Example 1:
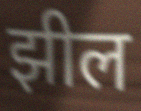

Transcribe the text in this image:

झील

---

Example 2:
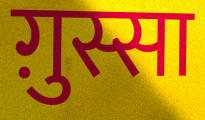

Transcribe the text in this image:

ग़ुस्सा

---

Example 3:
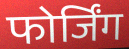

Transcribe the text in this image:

फोर्जिंग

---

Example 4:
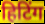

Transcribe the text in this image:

हिटिंग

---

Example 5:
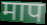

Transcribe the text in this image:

माप